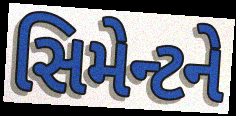
સિમેન્ટને